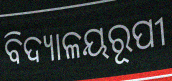
ବିଦ୍ୟାଳୟରୂପୀ